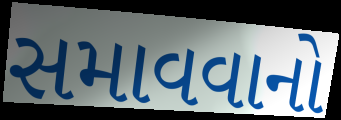
સમાવવાનો